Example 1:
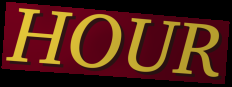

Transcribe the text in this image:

HOUR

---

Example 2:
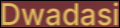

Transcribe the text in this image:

Dwadasi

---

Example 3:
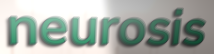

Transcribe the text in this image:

neurosis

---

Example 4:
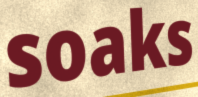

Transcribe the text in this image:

soaks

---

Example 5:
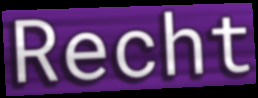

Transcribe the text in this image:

Recht